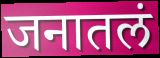
जनातलं